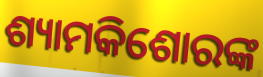
ଶ୍ୟାମକିଶୋରଙ୍କ